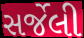
સર્જેલી